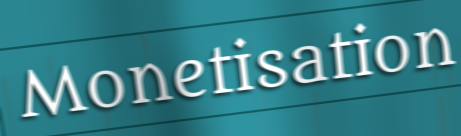
Monetisation